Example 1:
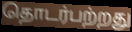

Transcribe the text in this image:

தொடர்பற்றது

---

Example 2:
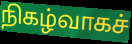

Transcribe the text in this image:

நிகழ்வாகச்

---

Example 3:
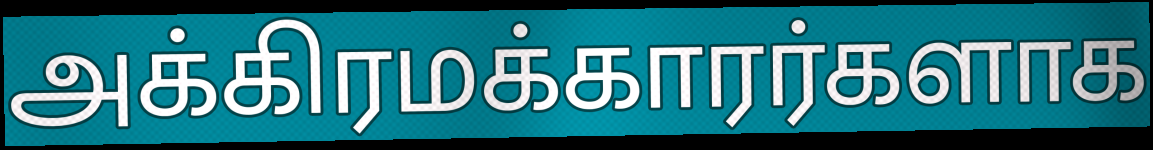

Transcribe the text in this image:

அக்கிரமக்காரர்களாக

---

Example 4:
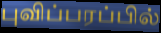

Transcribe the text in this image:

புவிப்பரப்பில்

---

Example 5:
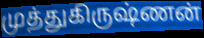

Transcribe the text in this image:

முத்துகிருஷ்ணன்